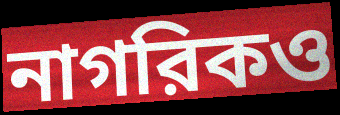
নাগরিকও